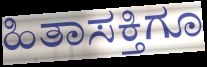
ಹಿತಾಸಕ್ತಿಗೂ